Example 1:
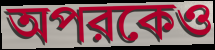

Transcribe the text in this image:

অপরকেও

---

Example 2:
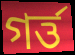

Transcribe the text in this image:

গর্ত্ত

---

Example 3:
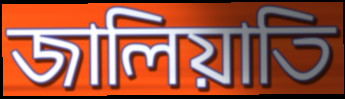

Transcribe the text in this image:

জালিয়াতি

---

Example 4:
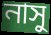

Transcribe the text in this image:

নাসু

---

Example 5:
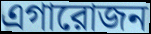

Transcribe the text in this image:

এগারোজন